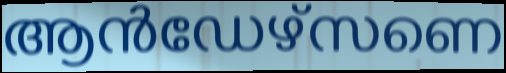
ആൻഡേഴ്സണെ